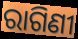
ରାଗିଣୀ